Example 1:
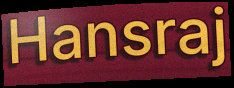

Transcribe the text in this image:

Hansraj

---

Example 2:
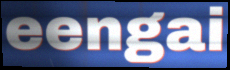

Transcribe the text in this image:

eengai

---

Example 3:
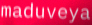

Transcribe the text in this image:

maduveya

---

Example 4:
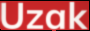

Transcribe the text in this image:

Uzak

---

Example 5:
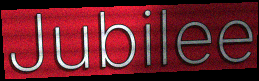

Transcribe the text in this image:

Jubilee